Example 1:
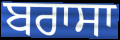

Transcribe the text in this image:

ਬਰਾਸਾ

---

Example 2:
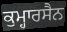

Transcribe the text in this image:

ਕੁਮ੍ਹਾਰਸੈਨ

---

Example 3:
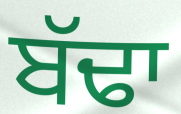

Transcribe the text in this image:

ਬੱਢਾ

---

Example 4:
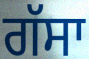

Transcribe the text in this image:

ਗੱਸਾ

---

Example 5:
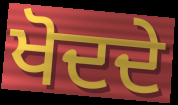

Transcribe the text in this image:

ਖੋਦਦੇ